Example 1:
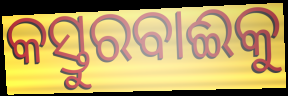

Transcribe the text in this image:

କସ୍ତୁରବାଈକୁ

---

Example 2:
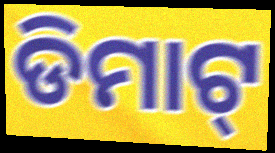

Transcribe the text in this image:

ଡିମାଟ୍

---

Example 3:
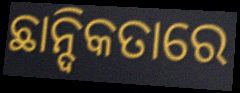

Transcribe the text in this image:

ଛାନ୍ଦିକତାରେ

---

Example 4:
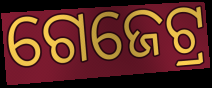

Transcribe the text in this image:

ଗେଜେଟ୍ର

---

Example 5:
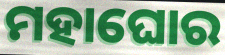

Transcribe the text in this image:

ମହାଘୋର